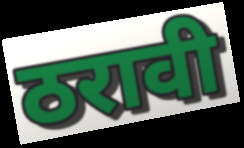
ठरावी